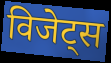
विजेट्स